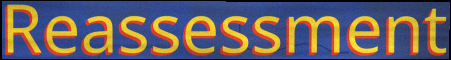
Reassessment